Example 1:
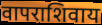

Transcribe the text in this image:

वापराशिवाय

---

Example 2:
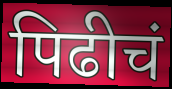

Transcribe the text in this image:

पिढीचं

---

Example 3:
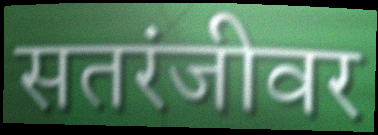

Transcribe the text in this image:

सतरंजीवर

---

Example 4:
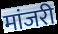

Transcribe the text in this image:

मांजरी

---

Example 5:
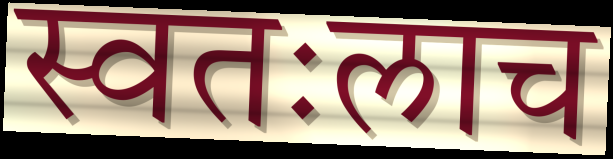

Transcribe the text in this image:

स्वतःलाच